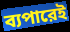
ব্যপারেই